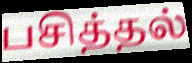
பசித்தல்